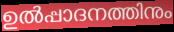
ഉൽപ്പാദനത്തിനും